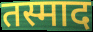
तस्माद